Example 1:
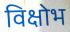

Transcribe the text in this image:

विक्षोभ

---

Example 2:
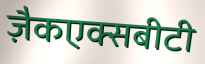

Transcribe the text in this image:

ज़ैकएक्सबीटी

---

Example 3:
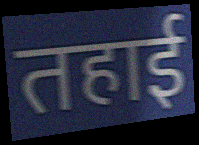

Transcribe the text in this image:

तहाई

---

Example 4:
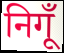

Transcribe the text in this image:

निगूँ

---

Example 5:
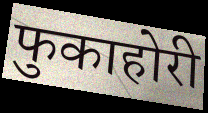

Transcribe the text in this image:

फुकाहोरी